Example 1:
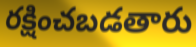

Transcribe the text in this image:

రక్షించబడతారు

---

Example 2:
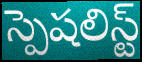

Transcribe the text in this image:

స్పెషలిస్ట్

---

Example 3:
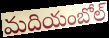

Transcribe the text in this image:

మదియంబోల్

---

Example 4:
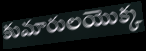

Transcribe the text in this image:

కుమారులయొక్క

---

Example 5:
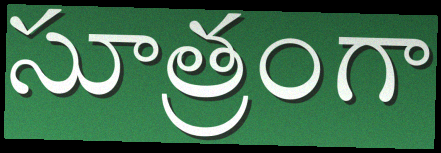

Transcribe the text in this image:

సూత్రంగా